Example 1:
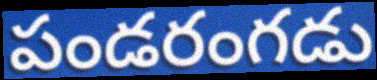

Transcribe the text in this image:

పండరంగడు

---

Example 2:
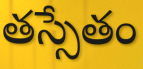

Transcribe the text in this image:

తస్సేతం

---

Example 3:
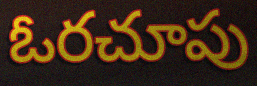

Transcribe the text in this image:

ఓరచూపు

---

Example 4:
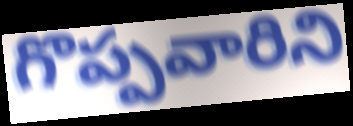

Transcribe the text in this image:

గొప్పవారిని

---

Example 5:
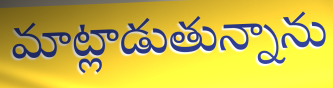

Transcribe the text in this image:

మాట్లాడుతున్నాను